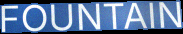
FOUNTAIN